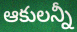
ఆకులన్నీ